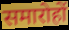
समारोहों